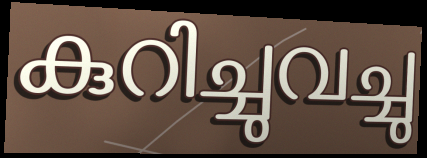
കുറിച്ചുവച്ചു